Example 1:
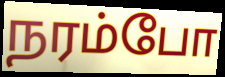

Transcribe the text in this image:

நரம்போ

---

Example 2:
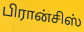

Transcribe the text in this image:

பிரான்சிஸ்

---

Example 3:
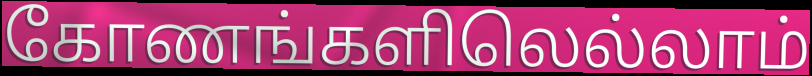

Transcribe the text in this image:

கோணங்களிலெல்லாம்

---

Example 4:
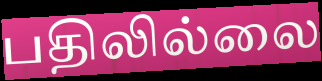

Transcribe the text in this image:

பதிலில்லை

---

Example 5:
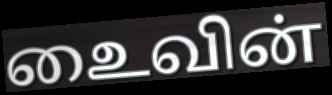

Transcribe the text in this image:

உைவின்